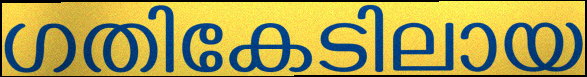
ഗതികേടിലായ